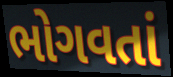
ભોગવતાં